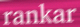
rankar